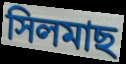
সিলমাছ